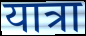
यात्रा